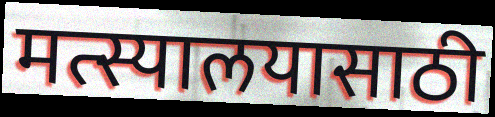
मत्स्यालयासाठी